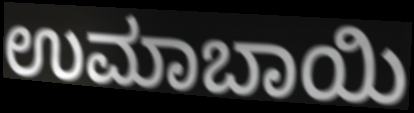
ಉಮಾಬಾಯಿ